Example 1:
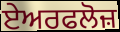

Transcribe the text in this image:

ਏਅਰਫਲੋਜ਼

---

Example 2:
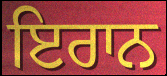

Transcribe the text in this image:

ਇਰਾਨ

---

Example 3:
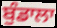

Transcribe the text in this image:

ਬੁੰਡਾਲਾ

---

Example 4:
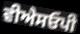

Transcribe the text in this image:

ਵੀਐਸਓਪੀ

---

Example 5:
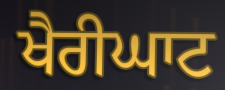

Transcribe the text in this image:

ਖੈਰੀਘਾਟ